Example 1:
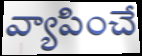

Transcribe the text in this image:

వ్యాపించే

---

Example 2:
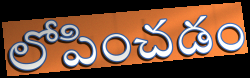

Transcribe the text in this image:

లోపించడం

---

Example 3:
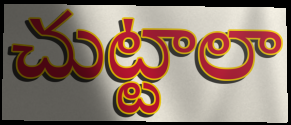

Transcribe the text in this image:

చుట్టాలా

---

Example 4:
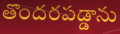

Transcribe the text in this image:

తొందరపడ్డాను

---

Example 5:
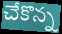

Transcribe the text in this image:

చేకొన్న